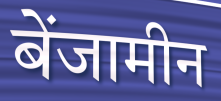
बेंजामीन